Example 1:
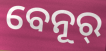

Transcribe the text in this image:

ବେନୂର୍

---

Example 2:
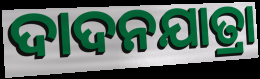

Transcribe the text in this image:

ଦାଦନଯାତ୍ରା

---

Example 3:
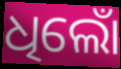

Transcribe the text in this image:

ଧିଲୋଁ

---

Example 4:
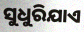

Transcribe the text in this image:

ସୁଧୁରିଯାଏ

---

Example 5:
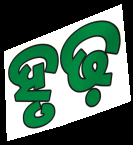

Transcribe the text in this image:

ହୃଢ଼